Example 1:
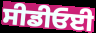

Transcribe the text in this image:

ਸੀਡੀਓਈ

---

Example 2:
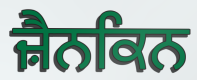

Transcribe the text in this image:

ਜ਼ੈਨਕਿਨ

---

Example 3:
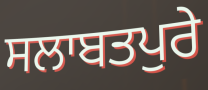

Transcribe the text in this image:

ਸਲਾਬਤਪੁਰੇ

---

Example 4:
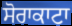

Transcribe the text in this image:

ਸੋਰਾਕਾਟਾ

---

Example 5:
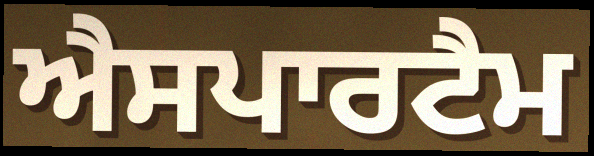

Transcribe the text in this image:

ਐਸਪਾਰਟੈਮ